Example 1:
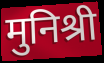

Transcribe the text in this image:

मुनिश्री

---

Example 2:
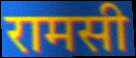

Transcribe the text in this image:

रामसी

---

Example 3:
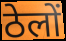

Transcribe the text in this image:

ठेलों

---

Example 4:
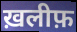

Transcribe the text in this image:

ख़लीफ़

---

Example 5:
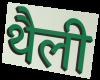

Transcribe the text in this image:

थैली